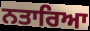
ਨਤਾਰਿਆ